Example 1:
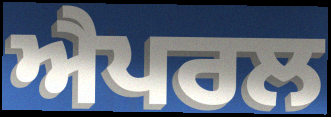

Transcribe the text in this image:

ਐਪਰਲ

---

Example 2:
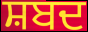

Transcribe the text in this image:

ਸ਼ਬਦ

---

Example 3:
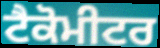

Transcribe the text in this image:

ਟੈਕੋਮੀਟਰ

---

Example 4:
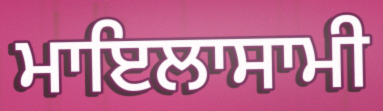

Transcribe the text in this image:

ਮਾਇਲਾਸਾਮੀ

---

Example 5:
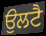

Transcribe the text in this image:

ਉਲਟੈ